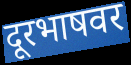
दूरभाषवर